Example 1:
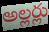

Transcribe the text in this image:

అల్లర్లు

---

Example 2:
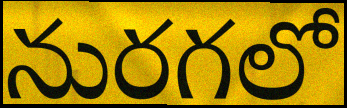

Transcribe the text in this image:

నురగలో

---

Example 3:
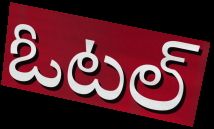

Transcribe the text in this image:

ఓటల్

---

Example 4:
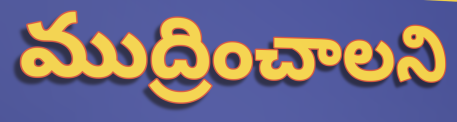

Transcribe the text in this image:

ముద్రించాలని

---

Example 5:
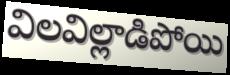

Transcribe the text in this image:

విలవిల్లాడిపోయి